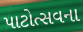
પાટોત્સવના